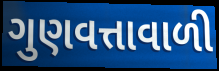
ગુણવત્તાવાળી